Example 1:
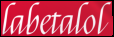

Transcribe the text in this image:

labetalol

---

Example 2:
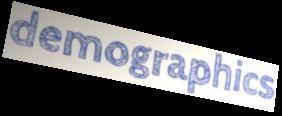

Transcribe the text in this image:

demographics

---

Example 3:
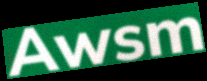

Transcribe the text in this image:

Awsm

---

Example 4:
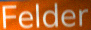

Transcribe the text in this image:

Felder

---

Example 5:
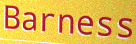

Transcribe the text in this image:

Barness